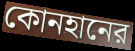
কোনহানের